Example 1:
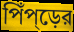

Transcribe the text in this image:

পিঁপ্ড়ের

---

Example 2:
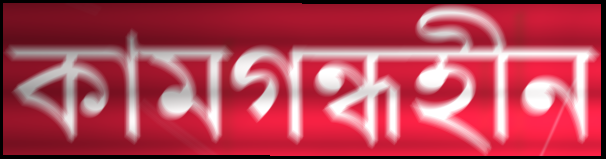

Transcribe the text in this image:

কামগন্ধহীন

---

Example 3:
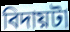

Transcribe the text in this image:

বিদায়টা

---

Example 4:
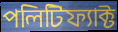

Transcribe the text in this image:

পলিটিফ্যাক্ট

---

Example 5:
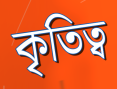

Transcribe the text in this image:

কৃতিত্ব